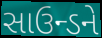
સાઉન્ડને